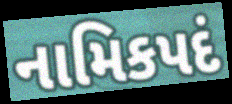
નામિકપદં